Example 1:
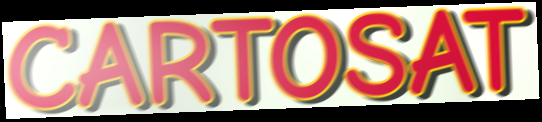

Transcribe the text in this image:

CARTOSAT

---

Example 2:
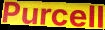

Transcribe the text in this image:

Purcell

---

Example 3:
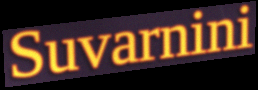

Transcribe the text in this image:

Suvarnini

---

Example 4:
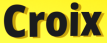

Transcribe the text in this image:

Croix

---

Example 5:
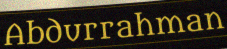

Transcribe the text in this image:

Abdurrahman